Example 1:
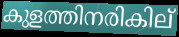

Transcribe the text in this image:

കുളത്തിനരികില്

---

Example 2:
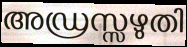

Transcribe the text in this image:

അഡ്രസ്സഴുതി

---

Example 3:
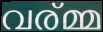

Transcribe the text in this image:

വര്മ്മ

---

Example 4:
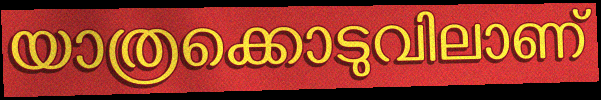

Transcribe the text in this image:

യാത്രക്കൊടുവിലാണ്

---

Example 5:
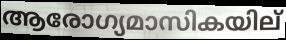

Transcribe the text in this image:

ആരോഗ്യമാസികയില്